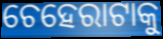
ଚେହେରାଟାକୁ